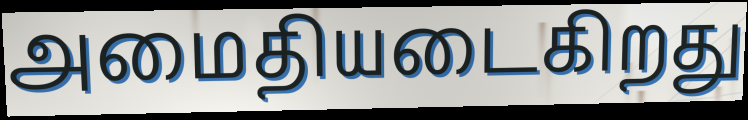
அமைதியடைகிறது